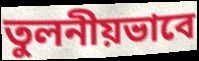
তুলনীয়ভাবে